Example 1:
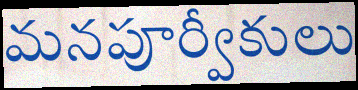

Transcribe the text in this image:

మనపూర్వీకులు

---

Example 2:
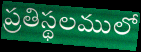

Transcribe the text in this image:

ప్రతిస్థలములో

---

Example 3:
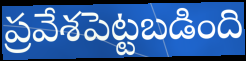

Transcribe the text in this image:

ప్రవేశపెట్టబడింది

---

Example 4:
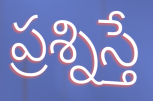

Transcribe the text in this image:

ప్రశ్నిస్తే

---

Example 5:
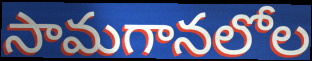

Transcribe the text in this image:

సామగానలోల